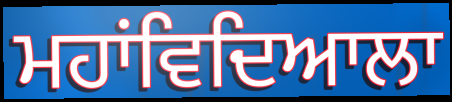
ਮਹਾਂਵਿਦਿਆਲਾ